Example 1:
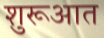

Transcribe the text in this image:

शुरूआत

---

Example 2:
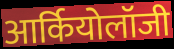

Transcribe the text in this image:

आर्कियोलॉजी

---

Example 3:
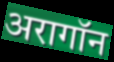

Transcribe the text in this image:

अरागॉन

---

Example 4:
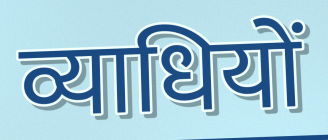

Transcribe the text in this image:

व्याधियों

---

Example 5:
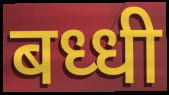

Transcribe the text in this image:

बध्धी